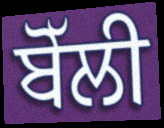
ਬੋੱਲੀ